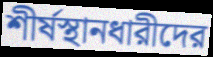
শীর্ষস্থানধারীদের